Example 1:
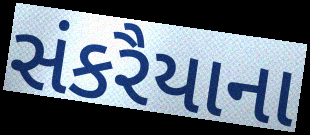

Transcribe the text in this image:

સંકરૈયાના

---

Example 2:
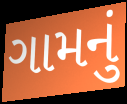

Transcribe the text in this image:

ગામનું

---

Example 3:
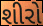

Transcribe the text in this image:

શીરો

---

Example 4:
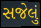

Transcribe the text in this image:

સજેલું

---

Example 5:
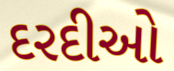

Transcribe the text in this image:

દરદીઓ